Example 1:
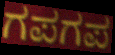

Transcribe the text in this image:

ಗಪಗಪ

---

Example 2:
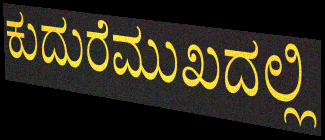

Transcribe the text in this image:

ಕುದುರೆಮುಖದಲ್ಲಿ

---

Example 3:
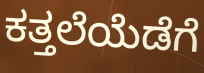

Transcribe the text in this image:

ಕತ್ತಲೆಯೆಡೆಗೆ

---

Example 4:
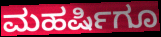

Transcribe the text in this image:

ಮಹರ್ಷಿಗೂ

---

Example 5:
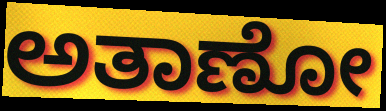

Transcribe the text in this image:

ಅತಾಣೋ